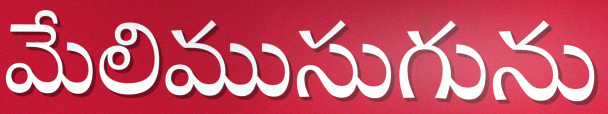
మేలిముసుగును